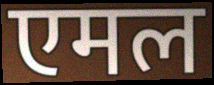
एमल